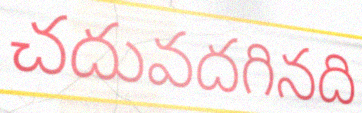
చదువదగినది